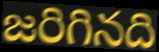
జరిగినది